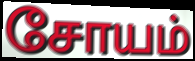
சோயம்